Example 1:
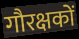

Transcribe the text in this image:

गौरक्षकों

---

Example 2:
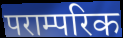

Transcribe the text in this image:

पराम्परिक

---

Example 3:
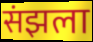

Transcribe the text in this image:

संझला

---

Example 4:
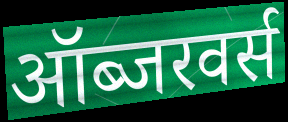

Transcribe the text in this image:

ऑब्जरवर्स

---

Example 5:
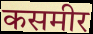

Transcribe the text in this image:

कसमीर